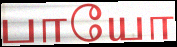
பாயோ